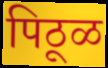
पिठूळ